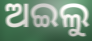
ଅଇଲୁ